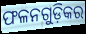
ଫଳନଗୁଡ଼ିକର